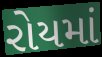
રોયમાં